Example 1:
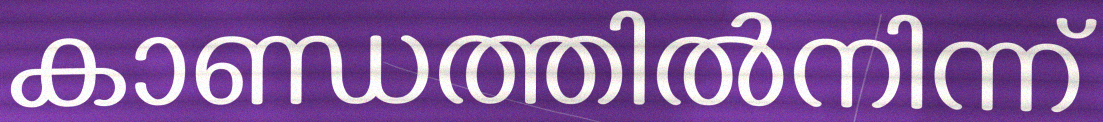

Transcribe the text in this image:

കാണ്ഡത്തിൽനിന്ന്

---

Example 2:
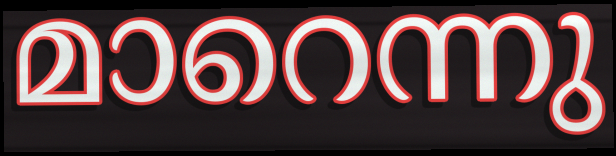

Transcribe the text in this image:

മാറെന്നു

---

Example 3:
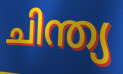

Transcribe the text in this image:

ചിന്ത്യ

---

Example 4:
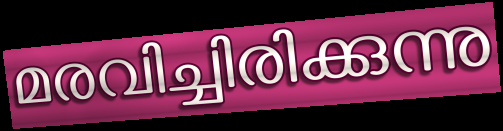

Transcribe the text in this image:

മരവിച്ചിരിക്കുന്നു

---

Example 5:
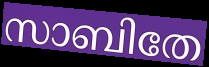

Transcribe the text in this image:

സാബിതേ